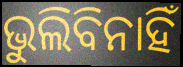
ଭୁଲିବିନାହିଁ